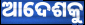
ଆଦେଶକୁ